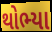
થોભ્યા